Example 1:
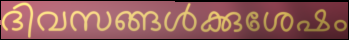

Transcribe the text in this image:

ദിവസങ്ങൾക്കുശേഷം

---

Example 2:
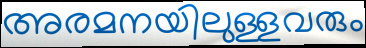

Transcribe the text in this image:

അരമനയിലുള്ളവരും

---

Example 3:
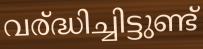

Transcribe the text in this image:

വര്ദ്ധിച്ചിട്ടുണ്ട്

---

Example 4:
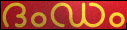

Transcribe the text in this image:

ദംഡം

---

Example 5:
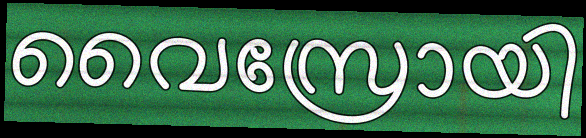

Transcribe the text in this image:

വൈസ്രോയി